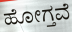
ಹೋಗ್ತವೆ